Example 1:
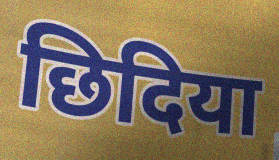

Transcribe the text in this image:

छिदिया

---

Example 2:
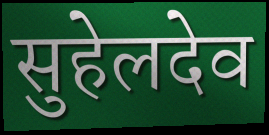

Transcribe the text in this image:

सुहेलदेव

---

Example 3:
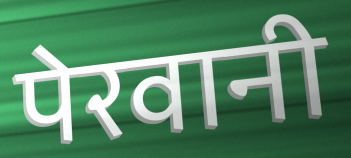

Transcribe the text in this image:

पेरवानी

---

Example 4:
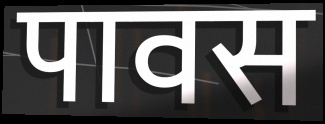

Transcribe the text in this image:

पावस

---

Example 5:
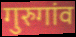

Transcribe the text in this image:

गुरुगांव